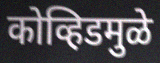
कोव्हिडमुळे